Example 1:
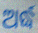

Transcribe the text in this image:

ଅର୍ଦ୍ଧ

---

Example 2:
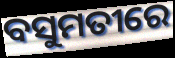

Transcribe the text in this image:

ବସୁମତୀରେ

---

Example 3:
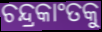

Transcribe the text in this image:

ଚନ୍ଦ୍ରକାଂତକୁ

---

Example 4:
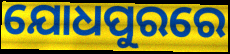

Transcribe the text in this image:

ଯୋଧପୁରରେ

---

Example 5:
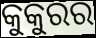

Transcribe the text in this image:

କୁକୁରର